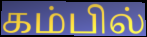
கம்பில்